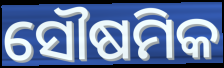
ସୌଷମିକ